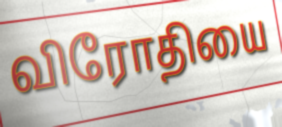
விரோதியை